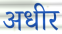
अधीर